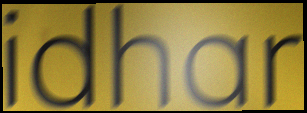
idhar